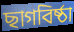
ছাগবিষ্ঠা